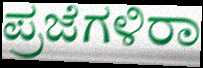
ಪ್ರಜೆಗಳಿರಾ